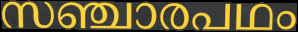
സഞ്ചാരപഥം